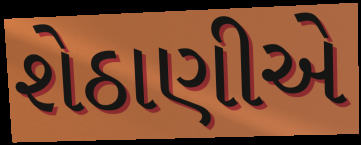
શેઠાણીએ